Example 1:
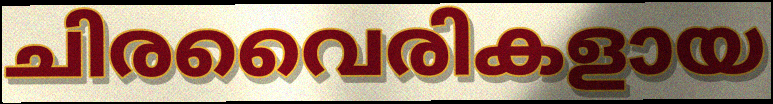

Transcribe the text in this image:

ചിരവൈരികളായ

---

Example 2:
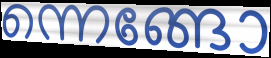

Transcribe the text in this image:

ന്നെങ്ങോ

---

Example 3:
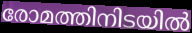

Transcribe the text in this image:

രോമത്തിനിടയിൽ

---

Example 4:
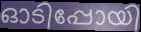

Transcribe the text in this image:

ഓടിപ്പോയി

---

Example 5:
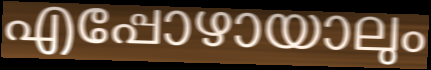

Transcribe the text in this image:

എപ്പോഴായാലും